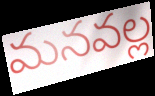
మనవల్ల